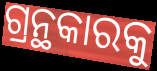
ଗ୍ରନ୍ଥକାରକୁ